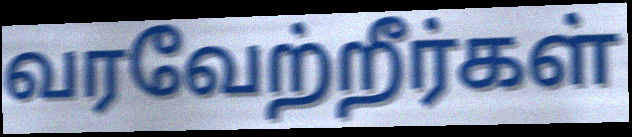
வரவேற்றீர்கள்